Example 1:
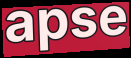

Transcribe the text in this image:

apse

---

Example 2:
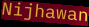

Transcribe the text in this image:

Nijhawan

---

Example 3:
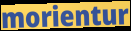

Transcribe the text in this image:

morientur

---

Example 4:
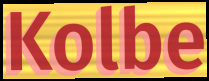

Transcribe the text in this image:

Kolbe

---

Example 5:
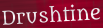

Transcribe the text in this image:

Drushtine